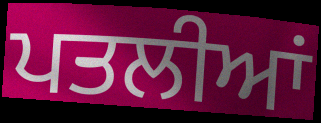
ਪਤਲੀਆਂ